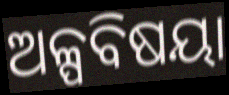
ଅଳ୍ପବିଷୟା